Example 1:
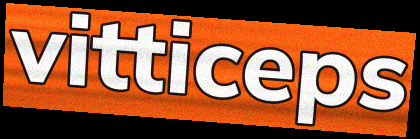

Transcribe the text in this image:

vitticeps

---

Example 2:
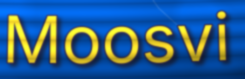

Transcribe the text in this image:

Moosvi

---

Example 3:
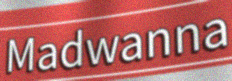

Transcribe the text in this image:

Madwanna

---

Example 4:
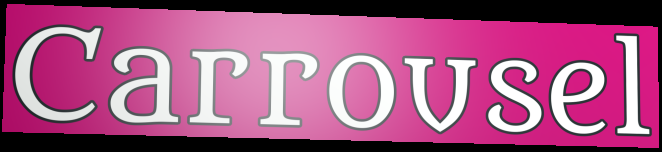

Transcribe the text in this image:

Carrousel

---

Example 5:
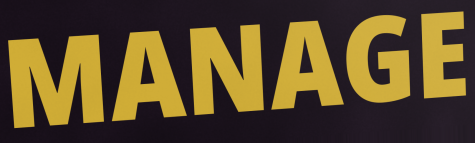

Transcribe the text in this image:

MANAGE